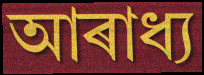
আৰাধ্য